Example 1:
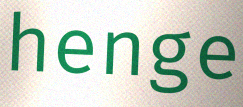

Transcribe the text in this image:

henge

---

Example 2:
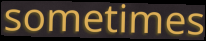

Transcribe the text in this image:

sometimes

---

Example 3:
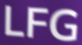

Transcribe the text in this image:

LFG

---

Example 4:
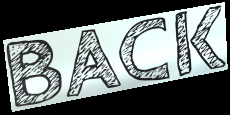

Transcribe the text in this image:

BACK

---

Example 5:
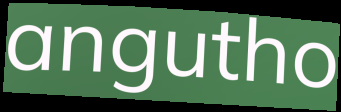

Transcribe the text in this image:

angutho